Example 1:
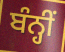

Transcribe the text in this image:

ਬੰਨ੍ਹੀਂ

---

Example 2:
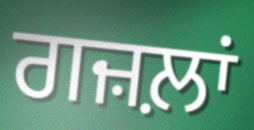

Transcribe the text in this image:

ਗਜ਼ਲ਼ਾਂ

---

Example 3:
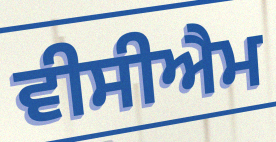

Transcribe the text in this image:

ਵੀਸੀਐਮ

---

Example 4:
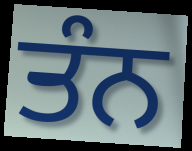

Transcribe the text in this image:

ਤੰਨ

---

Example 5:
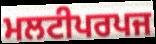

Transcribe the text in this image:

ਮਲਟੀਪਰਪਜ